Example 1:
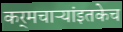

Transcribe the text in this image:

कर्मचाऱ्यांइतकेच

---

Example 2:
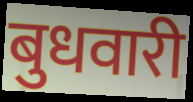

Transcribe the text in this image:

बुधवारी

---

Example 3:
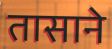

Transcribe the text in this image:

तासाने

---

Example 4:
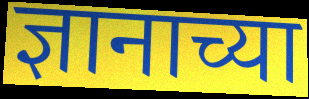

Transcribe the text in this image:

ज्ञानाच्या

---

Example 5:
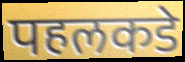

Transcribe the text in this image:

पहलकडे